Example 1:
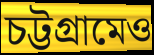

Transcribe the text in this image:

চট্টগ্রামেও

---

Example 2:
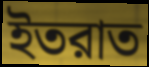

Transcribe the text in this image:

ইতরাত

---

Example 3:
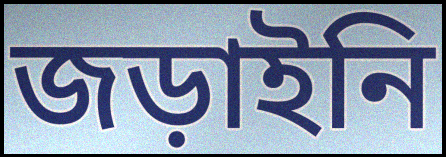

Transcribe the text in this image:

জড়াইনি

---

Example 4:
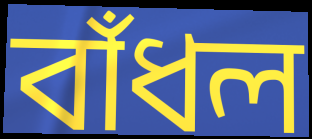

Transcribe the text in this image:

বাঁধল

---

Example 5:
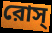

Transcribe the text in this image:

রোস্